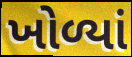
ખોળ્યાં